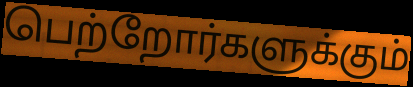
பெற்றோர்களுக்கும்